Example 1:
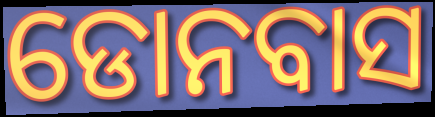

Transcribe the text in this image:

ଡୋନବାସ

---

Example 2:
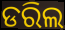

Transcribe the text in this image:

ଡରିଲ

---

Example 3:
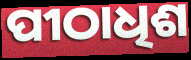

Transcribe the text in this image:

ପୀଠାଧିଶ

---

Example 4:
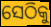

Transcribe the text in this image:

ସେଠିକୁ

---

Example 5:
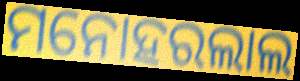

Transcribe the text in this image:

ମନୋହରଲାଲ